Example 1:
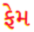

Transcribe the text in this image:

ફેમ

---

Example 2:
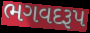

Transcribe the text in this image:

ભગવદરૂપ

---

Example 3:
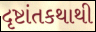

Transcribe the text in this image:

દૃષ્ટાંતકથાથી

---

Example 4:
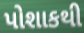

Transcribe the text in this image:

પોશાકથી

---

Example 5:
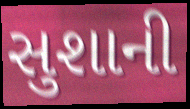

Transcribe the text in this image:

સુશાની